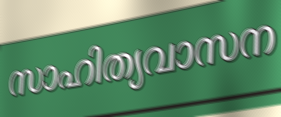
സാഹിത്യവാസന